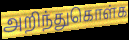
அறிந்துகொள்க